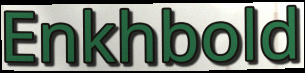
Enkhbold